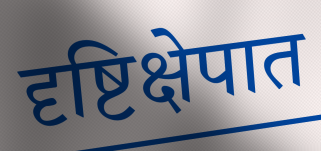
दृष्टिक्षेपात